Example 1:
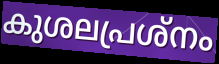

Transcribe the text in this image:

കുശലപ്രശ്നം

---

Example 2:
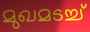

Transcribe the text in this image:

മുഖമടച്ച്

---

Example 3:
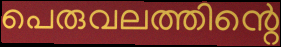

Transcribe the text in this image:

പെരുവലത്തിന്റെ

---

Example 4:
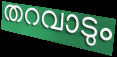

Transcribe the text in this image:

തറവാടും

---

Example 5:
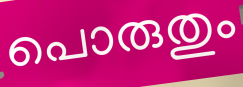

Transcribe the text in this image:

പൊരുതും